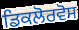
ਡਿਕਲੋਰਵੋਸ